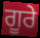
ਗੂਰੇ